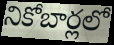
నికోబార్లలో